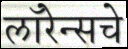
लॉरेन्सचे